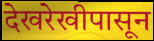
देखरेखीपासून